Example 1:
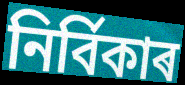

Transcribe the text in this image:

নিৰ্বিকাৰ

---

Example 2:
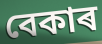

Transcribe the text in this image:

বেকাৰ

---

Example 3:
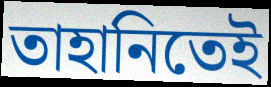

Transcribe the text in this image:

তাহানিতেই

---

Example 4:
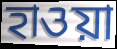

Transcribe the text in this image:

হাওয়া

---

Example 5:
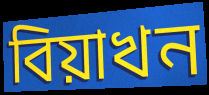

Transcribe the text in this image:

বিয়াখন